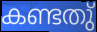
കണ്ടതു്